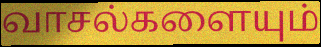
வாசல்களையும்